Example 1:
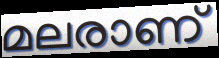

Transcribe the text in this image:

മലരാണ്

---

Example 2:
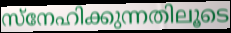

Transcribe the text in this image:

സ്നേഹിക്കുന്നതിലൂടെ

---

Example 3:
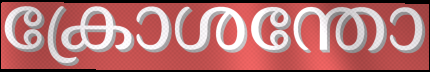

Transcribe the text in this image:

ക്രോശന്തോ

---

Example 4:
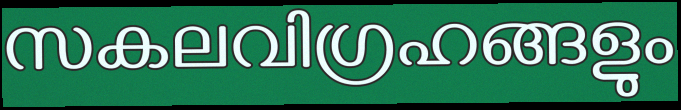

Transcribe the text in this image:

സകലവിഗ്രഹങ്ങളും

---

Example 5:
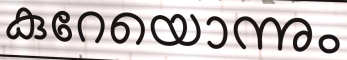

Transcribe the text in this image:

കുറേയൊന്നും